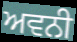
ਅਵਨੀ